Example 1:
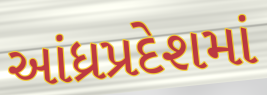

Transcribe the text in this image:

આંધ્રપ્રદેશમાં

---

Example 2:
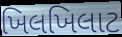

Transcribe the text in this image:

ખિલખિલાટ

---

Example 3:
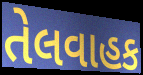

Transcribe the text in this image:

તેલવાહક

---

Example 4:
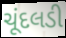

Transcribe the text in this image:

ચૂંદલડી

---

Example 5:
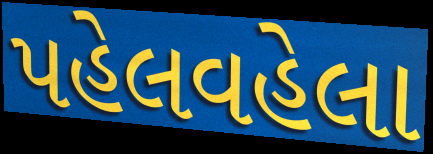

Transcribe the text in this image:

પહેલવહેલા